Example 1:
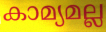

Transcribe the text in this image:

കാമ്യമല്ല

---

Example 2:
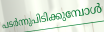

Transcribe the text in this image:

പടർന്നുപിടിക്കുമ്പോൾ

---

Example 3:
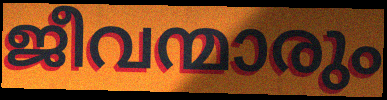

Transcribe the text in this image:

ജീവന്മാരും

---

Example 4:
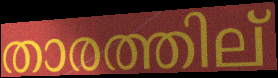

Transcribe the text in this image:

താരത്തില്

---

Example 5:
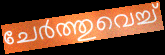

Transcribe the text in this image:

ചേർത്തുവെച്ച്